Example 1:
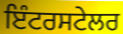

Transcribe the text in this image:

ਇੰਟਰਸਟੇਲਰ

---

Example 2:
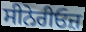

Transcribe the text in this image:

ਸੀਨੇਰੀਓਜ਼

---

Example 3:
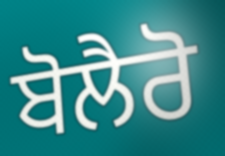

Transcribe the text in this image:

ਬੋਲੈਰੋ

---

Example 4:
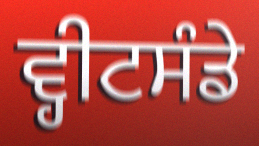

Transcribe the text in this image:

ਵ੍ਹੀਟਸੰਡੇ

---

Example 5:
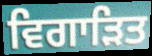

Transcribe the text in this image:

ਵਿਗਾੜਿਤ